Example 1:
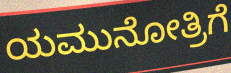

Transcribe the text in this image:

ಯಮುನೋತ್ರಿಗೆ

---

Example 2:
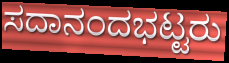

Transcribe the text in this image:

ಸದಾನಂದಭಟ್ಟರು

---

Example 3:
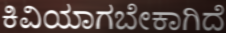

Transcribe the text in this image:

ಕಿವಿಯಾಗಬೇಕಾಗಿದೆ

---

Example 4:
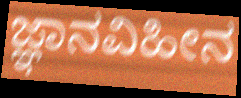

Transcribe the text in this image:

ಜ್ಞಾನವಿಹೀನ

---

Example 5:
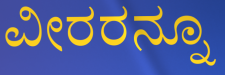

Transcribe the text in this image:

ವೀರರನ್ನೂ